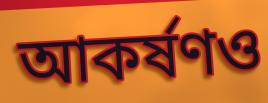
আকর্ষণও